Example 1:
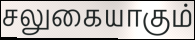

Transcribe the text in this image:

சலுகையாகும்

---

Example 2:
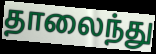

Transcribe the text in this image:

தாலைந்து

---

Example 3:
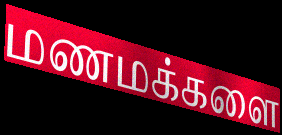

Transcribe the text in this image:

மணமக்களை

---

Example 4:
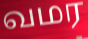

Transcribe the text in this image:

வமர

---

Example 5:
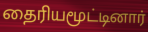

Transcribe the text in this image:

தைரியமூட்டினார்